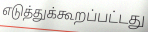
எடுத்துக்கூறப்பட்டது